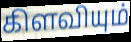
கிளவியும்